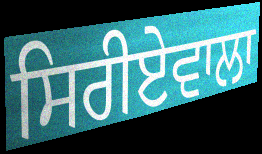
ਸਿਰੀਏਵਾਲਾ